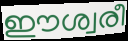
ഈശ്വരീ